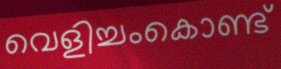
വെളിച്ചംകൊണ്ട്